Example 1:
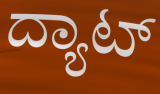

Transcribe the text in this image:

ದ್ಯಾಟ್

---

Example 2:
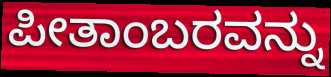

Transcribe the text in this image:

ಪೀತಾಂಬರವನ್ನು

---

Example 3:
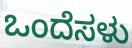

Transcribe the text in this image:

ಒಂದೆಸಳು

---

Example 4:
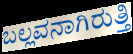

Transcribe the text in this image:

ಬಲ್ಲವನಾಗಿರುತ್ತಿ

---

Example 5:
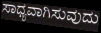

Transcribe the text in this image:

ಸಾಧ್ಯವಾಗಿಸುವುದು